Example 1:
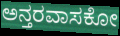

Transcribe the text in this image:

ಅನ್ತರವಾಸಕೋ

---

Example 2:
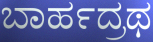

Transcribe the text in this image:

ಬಾರ್ಹದ್ರಥ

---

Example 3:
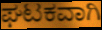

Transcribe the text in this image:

ಘಟಕವಾಗಿ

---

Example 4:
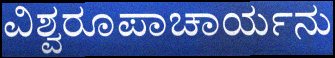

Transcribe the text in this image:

ವಿಶ್ವರೂಪಾಚಾರ್ಯನು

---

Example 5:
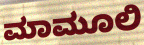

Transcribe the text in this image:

ಮಾಮೂಲಿ